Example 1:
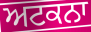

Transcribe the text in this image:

ਅਟਕਨਾ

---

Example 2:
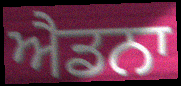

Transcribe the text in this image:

ਐਡਨਾ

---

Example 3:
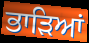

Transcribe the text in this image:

ਭਾੜਿਆਂ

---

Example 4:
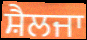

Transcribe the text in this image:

ਸ਼ੈਲਜਾ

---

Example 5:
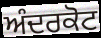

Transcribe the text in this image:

ਅੰਦਰਕੋਟ